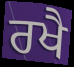
ਰਖੈ